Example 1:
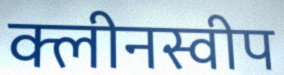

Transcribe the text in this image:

क्लीनस्वीप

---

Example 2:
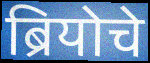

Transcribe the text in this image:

ब्रियोचे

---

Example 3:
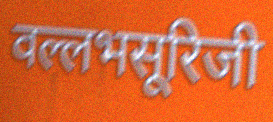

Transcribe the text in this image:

वल्लभसूरिजी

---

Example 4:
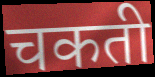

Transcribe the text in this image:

चकती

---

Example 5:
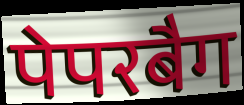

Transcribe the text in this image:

पेपरबैग